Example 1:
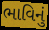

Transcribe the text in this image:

ભાવિનું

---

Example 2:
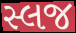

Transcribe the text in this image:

સ્લજ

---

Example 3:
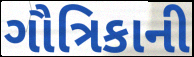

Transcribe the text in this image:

ગૌત્રિકાની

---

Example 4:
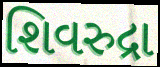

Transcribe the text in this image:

શિવરુદ્રા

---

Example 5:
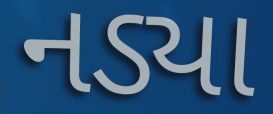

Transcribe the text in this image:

નડ્યા